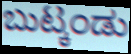
ಬುಟ್ಕಂಡು